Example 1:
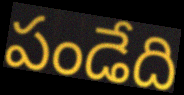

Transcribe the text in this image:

పండేది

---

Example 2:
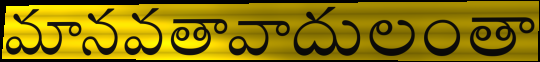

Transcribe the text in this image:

మానవతావాదులంతా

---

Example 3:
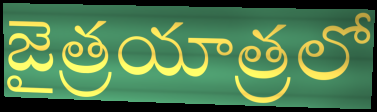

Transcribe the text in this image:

జైత్రయాత్రలో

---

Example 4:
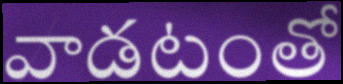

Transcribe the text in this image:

వాడటంతో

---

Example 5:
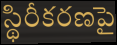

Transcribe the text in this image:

స్థిరీకరణపై